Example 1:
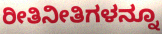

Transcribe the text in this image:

ರೀತಿನೀತಿಗಳನ್ನೂ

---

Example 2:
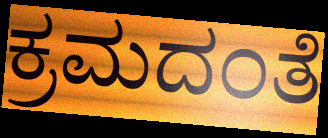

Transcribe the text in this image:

ಕ್ರಮದಂತೆ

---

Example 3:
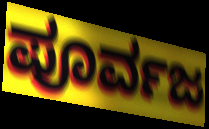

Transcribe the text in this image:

ಪೂರ್ವಜ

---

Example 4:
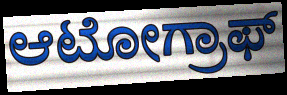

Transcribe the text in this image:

ಆಟೋಗ್ರಾಫ್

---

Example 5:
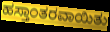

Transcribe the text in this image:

ಹಸ್ತಾಂತರವಾಯಿತು